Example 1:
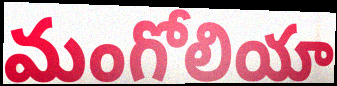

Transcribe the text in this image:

మంగోలియా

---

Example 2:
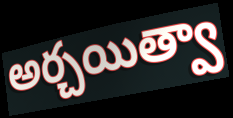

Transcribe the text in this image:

అర్చయిత్వా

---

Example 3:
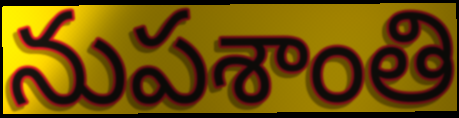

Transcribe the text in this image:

నుపశాంతి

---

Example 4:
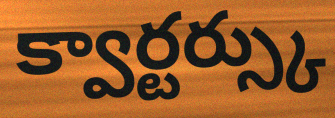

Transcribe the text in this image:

క్వార్టర్స్కు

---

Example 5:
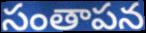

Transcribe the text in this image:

సంతాపన